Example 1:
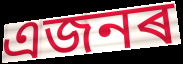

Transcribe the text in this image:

এজনৰ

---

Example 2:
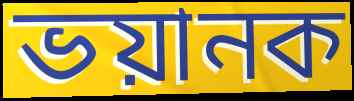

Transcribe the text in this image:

ভয়ানক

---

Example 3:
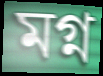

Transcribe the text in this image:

মগ্ন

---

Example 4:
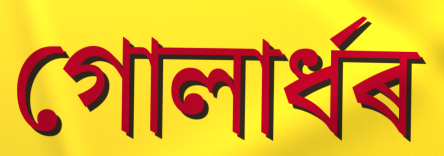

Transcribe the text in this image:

গোলাৰ্ধৰ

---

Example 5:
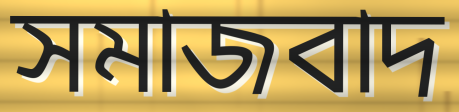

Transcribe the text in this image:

সমাজবাদ